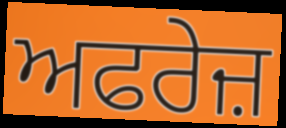
ਅਫਰੇਜ਼